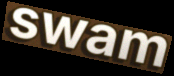
swam